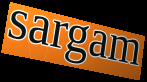
sargam